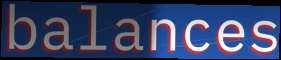
balances